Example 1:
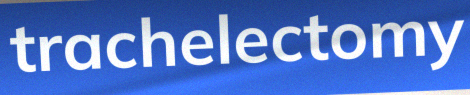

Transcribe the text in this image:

trachelectomy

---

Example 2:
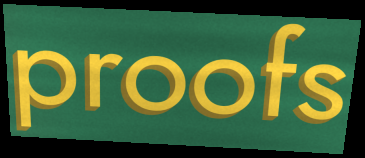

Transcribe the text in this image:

proofs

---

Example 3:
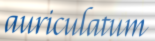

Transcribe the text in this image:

auriculatum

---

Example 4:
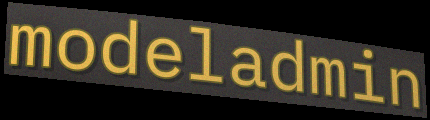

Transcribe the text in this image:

modeladmin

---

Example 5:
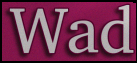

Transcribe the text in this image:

Wad